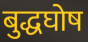
बुद्धघोष